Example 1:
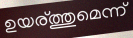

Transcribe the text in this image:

ഉയര്ത്തുമെന്ന്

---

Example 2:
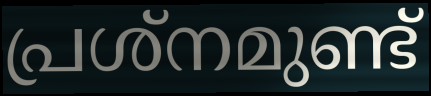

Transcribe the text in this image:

പ്രശ്നമുണ്ട്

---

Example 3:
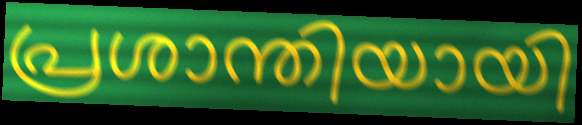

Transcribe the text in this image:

പ്രശാന്തിയായി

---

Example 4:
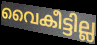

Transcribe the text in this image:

വൈകീട്ടില്ല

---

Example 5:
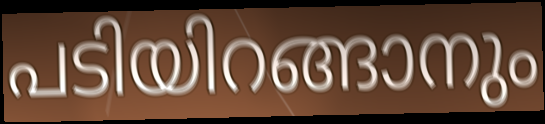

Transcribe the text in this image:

പടിയിറങ്ങാനും